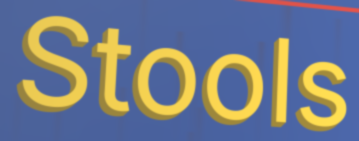
Stools